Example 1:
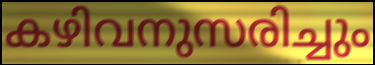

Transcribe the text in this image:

കഴിവനുസരിച്ചും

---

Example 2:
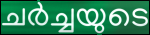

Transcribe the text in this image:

ചർച്ചയുടെ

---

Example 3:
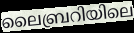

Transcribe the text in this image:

ലൈബ്രറിയിലെ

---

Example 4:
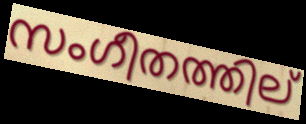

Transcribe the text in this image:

സംഗീതത്തില്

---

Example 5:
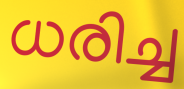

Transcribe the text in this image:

ധരിച്ച